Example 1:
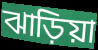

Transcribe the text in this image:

ঝাড়িয়া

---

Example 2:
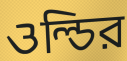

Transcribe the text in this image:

ওল্ডির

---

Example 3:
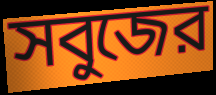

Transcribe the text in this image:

সবুজের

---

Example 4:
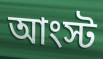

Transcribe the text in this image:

আংস্ট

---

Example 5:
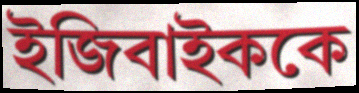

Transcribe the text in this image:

ইজিবাইককে